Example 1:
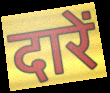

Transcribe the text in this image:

दारें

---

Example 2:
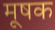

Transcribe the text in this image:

मूषक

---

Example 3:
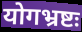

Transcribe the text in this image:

योगभ्रष्टः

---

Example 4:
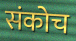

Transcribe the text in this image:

संकोच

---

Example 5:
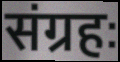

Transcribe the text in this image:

संग्रहः